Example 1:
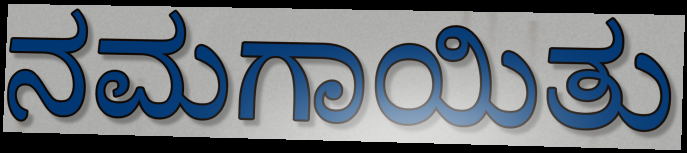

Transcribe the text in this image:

ನಮಗಾಯಿತು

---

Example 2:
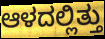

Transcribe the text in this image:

ಆಳದಲ್ಲಿತ್ತು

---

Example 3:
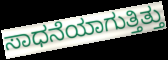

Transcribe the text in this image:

ಸಾಧನೆಯಾಗುತ್ತಿತ್ತು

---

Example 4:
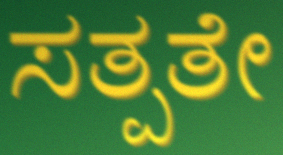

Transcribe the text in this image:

ಸತ್ಪತೇ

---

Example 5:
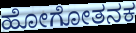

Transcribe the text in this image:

ಹೋಗೋತನಕ